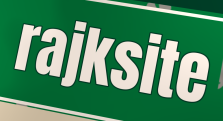
rajksite